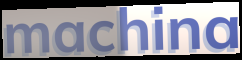
machina